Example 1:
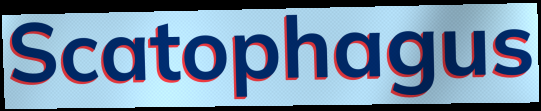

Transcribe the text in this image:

Scatophagus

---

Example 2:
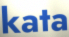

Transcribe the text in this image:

kata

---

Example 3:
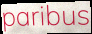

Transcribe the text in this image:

paribus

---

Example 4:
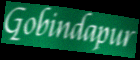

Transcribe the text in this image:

Gobindapur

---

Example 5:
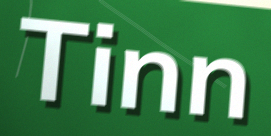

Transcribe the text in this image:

Tinn